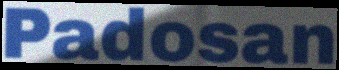
Padosan